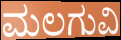
ಮಲಗುವಿ